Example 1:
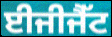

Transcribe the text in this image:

ਈਜੀਜੈੱਟ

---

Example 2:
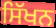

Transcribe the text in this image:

ਸਿੱਖਨ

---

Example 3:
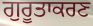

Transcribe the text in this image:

ਗੁਰੂਤਾਕਰਣ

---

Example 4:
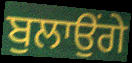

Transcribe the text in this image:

ਬੁਲਾਉਂਗੇ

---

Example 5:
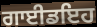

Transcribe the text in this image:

ਗਾਈਡਇਹ